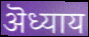
ऄध्याय